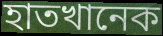
হাতখানেক